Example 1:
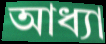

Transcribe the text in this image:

আধ্যা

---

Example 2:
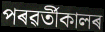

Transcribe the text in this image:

পৰৱৰ্তীকালৰ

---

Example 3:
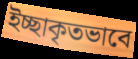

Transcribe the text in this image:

ইচ্ছাকৃতভাবে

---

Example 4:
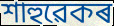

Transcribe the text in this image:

শাহুৱেকৰ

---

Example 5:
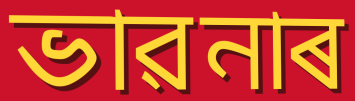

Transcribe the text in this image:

ভাৱনাৰ